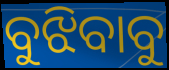
ବୁଝିବାବୁ